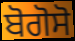
ਬੋਗੋਸੋ